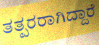
ತತ್ಪರರಾಗಿದ್ದಾರೆ